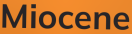
Miocene